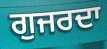
ਗੁਜਰਦਾ